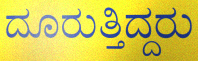
ದೂರುತ್ತಿದ್ದರು